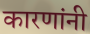
कारणांनी